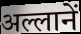
अल्लानें